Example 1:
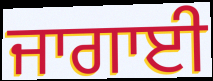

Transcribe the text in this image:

ਜਾਗਾਈ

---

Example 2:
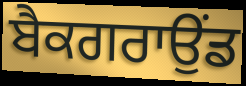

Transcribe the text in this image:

ਬੈਕਗਰਾਉਂਡ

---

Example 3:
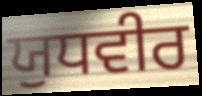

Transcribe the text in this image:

ਯੁਧਵੀਰ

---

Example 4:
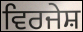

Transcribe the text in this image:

ਵਿਰਜੇਸ਼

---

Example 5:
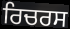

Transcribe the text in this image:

ਰਿਚਰਸ